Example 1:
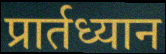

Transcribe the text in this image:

प्रार्तध्यान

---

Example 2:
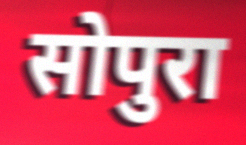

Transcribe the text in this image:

सोपुरा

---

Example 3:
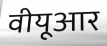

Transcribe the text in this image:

वीयूआर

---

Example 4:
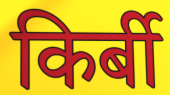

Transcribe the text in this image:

किर्बी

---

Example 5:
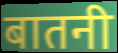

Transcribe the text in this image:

बातनी